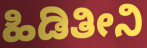
ಹಿಡಿತೀನಿ